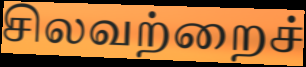
சிலவற்றைச்